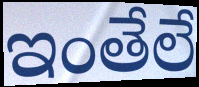
ఇంతేలే